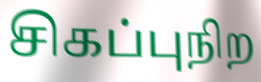
சிகப்புநிற